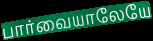
பார்வையாலேயே